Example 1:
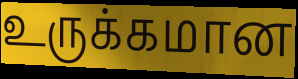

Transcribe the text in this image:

உருக்கமான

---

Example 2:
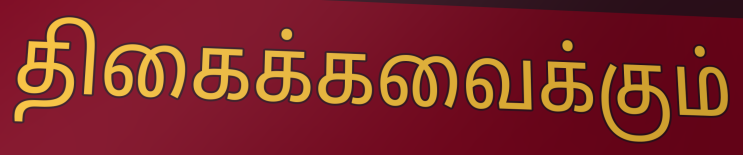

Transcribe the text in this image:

திகைக்கவைக்கும்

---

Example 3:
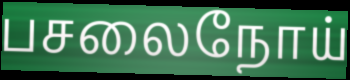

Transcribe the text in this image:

பசலைநோய்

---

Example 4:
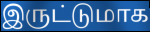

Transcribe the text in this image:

இருட்டுமாக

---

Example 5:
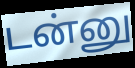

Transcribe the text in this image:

டன்னு